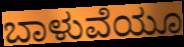
ಬಾಳುವೆಯೂ